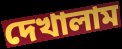
দেখালাম